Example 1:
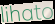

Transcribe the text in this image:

lihato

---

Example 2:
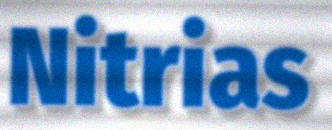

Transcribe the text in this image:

Nitrias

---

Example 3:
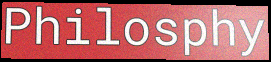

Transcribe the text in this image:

Philosphy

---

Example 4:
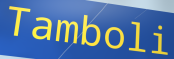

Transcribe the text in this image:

Tamboli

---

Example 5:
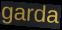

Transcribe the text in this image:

garda